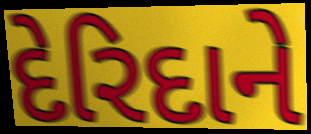
દેરિદાને